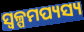
ସ୍ୱଳ୍ପମପ୍ୟସ୍ୟ